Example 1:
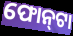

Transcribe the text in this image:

ଫୋନ୍‍ଟା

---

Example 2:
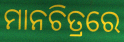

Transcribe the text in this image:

ମାନଚିତ୍ରରେ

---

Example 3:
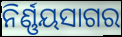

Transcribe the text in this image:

ନିର୍ଣ୍ଣୟସାଗର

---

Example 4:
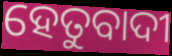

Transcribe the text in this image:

ହେତୁବାଦୀ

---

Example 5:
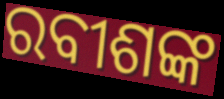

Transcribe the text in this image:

ରବୀଶଙ୍କ